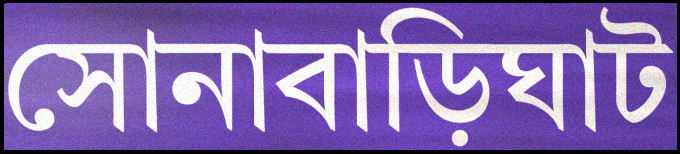
সোনাবাড়িঘাট